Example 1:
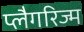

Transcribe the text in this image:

प्लैगरिज्म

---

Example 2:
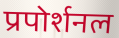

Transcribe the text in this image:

प्रपोर्शनल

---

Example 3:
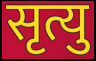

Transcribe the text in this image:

सृत्यु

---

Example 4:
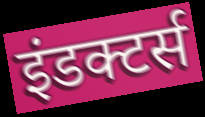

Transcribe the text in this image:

इंडक्टर्स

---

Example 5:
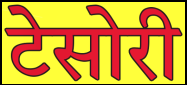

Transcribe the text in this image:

टेसोरी